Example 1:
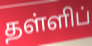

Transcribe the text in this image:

தள்ளிப்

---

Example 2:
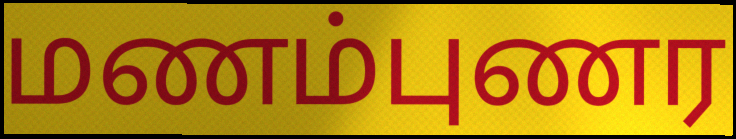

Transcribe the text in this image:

மணம்புணர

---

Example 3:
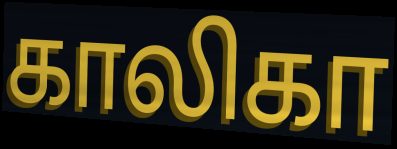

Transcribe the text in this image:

காலிகா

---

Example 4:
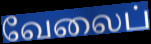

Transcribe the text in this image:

வேலைப்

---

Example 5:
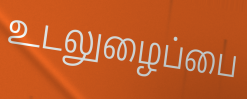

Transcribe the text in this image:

உடலுழைப்பை